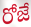
రోజే